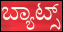
ಬ್ಯಾಟ್ಸ್